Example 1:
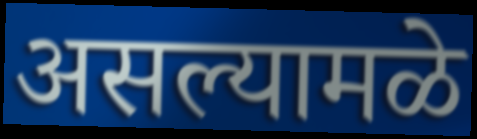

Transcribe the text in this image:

असल्यामळे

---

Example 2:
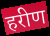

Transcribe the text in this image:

हरीण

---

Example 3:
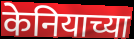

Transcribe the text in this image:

केनियाच्या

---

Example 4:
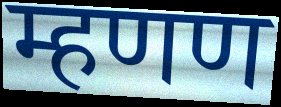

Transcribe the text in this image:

म्हणण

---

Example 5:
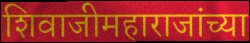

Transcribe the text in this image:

शिवाजीमहाराजांच्या